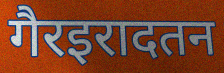
गैरइरादतन